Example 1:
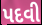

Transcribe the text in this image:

પદવી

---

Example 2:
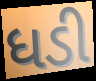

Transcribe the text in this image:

ધડી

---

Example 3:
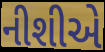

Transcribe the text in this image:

નીશીએ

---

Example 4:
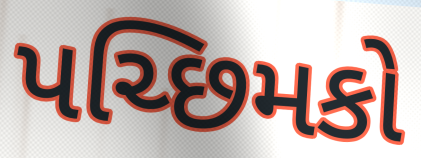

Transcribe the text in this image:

પચ્છિમકો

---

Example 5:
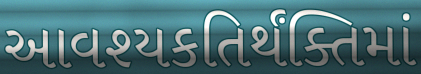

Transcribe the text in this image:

આવશ્યકતિર્થંક્તિમાં